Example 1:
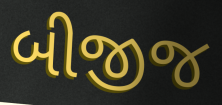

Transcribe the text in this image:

બીજીજ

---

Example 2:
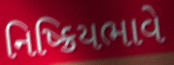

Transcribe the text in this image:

નિષ્ક્રિયભાવે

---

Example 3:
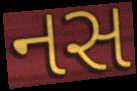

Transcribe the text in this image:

નસ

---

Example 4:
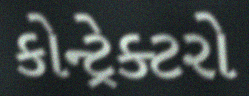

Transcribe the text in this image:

કોન્ટ્રેક્ટરો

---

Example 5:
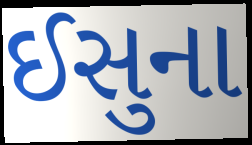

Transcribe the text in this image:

ઈસુના